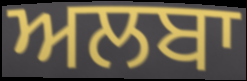
ਅਲਬਾ